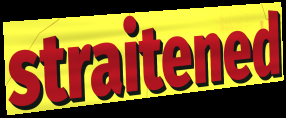
straitened